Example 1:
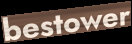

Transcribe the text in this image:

bestower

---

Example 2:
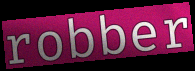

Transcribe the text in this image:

robber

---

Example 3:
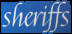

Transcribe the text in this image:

sheriffs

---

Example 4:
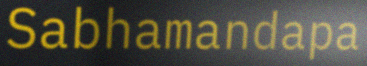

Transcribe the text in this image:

Sabhamandapa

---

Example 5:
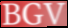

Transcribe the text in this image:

BGV